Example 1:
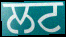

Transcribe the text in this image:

ਲਟ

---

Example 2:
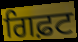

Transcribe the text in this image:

ਗਿਫ਼ਟ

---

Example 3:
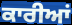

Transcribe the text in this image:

ਕਾਰੀਆਂ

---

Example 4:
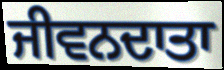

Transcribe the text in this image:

ਜੀਵਨਦਾਤਾ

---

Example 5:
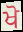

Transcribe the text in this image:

ਖੋ